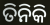
ତିନିକି